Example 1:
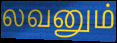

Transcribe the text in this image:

லவனும்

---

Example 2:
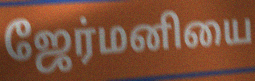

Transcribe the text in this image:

ஜேர்மனியை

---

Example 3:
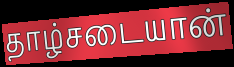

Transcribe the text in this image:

தாழ்சடையான்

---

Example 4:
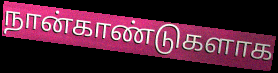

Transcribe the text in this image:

நான்காண்டுகளாக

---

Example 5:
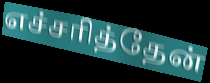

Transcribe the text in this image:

எச்சரித்தேன்